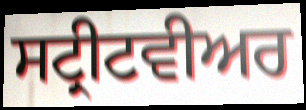
ਸਟ੍ਰੀਟਵੀਅਰ